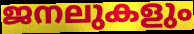
ജനലുകളും